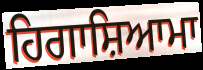
ਹਿਗਾਸ਼ਿਆਮਾ